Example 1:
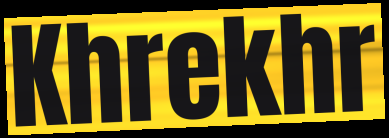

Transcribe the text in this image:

Khrekhr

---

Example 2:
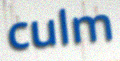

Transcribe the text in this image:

culm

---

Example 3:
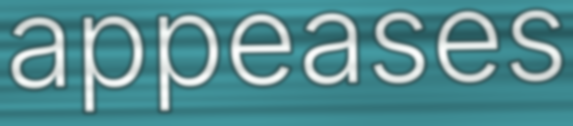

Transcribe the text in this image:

appeases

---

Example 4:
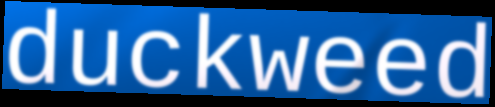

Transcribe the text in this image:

duckweed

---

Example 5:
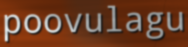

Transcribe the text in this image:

poovulagu